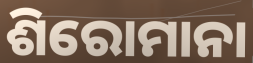
ଶିରୋମାନା